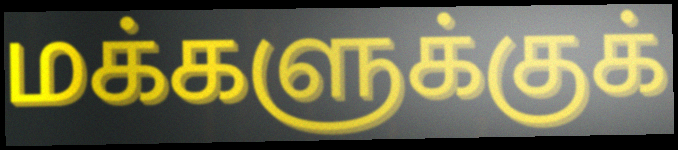
மக்களுக்குக்